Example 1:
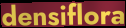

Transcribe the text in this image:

densiflora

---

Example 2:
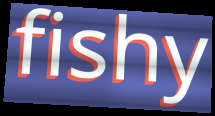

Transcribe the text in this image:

fishy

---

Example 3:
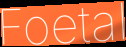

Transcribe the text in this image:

Foetal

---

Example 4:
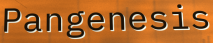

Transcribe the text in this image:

Pangenesis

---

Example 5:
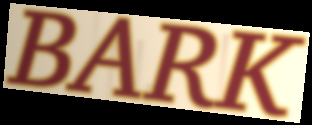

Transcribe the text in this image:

BARK